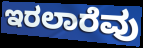
ಇರಲಾರೆವು